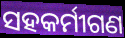
ସହକର୍ମୀଗଣ